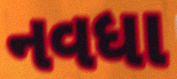
નવધા